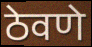
ठेवणे